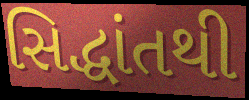
સિદ્ધાંતથી